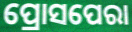
ପ୍ରୋସପେରା